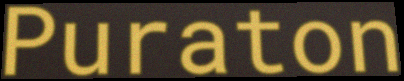
Puraton